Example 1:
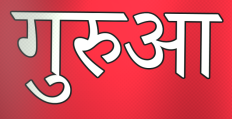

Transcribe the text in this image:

गुरुआ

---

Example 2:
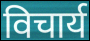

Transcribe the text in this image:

विचार्य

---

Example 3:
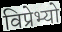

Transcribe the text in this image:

विप्रेभ्यो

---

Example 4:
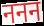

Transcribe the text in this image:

ननन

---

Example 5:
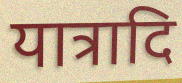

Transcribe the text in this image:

यात्रादि